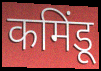
कमिंडू